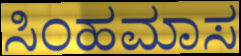
ಸಿಂಹಮಾಸ